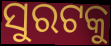
ସୁରଟକୁ